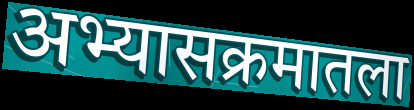
अभ्यासक्रमातला